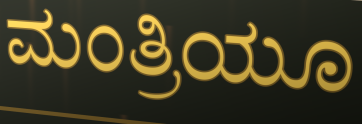
ಮಂತ್ರಿಯೂ